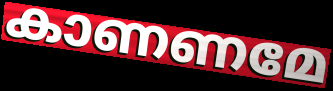
കാണണമേ